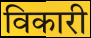
विकारी